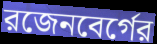
রজেনবের্গের